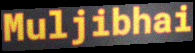
Muljibhai